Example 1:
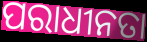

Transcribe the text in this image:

ପରାଧୀନତା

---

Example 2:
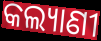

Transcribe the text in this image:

କଲ୍ୟାଣୀ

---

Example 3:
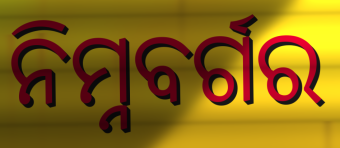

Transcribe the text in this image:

ନିମ୍ନବର୍ଗର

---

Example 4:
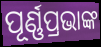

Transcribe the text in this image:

ପୂର୍ଣ୍ଣପ୍ରଭାଙ୍କ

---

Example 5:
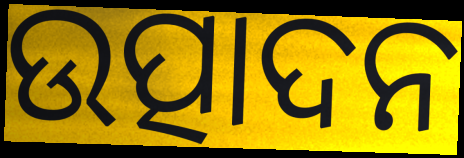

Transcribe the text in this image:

ଉତ୍ପାଦନ